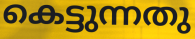
കെട്ടുന്നതു